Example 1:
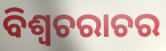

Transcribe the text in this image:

ବିଶ୍ଵଚରାଚର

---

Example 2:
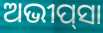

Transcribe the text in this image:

ଅଭୀପ୍‌ସା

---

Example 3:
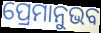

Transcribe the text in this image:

ପ୍ରେମାନୁଭବ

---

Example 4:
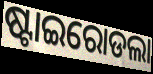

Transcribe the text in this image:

ଷ୍ଟାଇରୋଡଲା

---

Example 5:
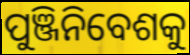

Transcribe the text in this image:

ପୁଞ୍ଜିନିବେଶକୁ